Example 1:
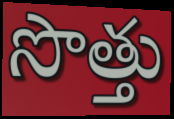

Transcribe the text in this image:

సొత్తు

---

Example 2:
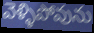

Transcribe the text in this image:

వెళ్ళిపోవును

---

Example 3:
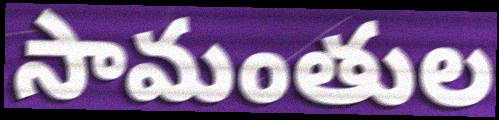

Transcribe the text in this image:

సామంతుల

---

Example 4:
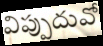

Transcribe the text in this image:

విప్పుదువో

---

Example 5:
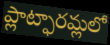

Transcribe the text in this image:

ప్లాట్ఫారమ్లలో